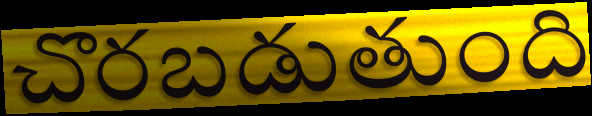
చొరబడుతుంది